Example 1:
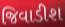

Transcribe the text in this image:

જિવાડીશ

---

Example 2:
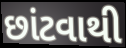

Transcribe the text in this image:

છાંટવાથી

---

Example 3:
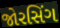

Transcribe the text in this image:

જોરસિંગ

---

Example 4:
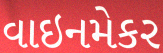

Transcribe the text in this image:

વાઇનમેકર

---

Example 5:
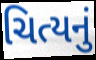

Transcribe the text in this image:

ચિત્યનું